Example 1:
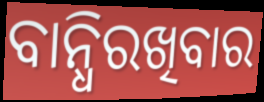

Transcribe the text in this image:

ବାନ୍ଧିରଖିବାର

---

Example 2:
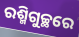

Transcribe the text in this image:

ରଶ୍ମିଗୁଚ୍ଛରେ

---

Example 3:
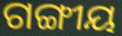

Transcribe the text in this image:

ଗଙ୍ଗୀୟ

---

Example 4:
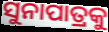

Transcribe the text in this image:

ସୁନାପାତ୍ରକୁ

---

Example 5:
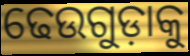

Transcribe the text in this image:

ଢେଉଗୁଡ଼ାକୁ